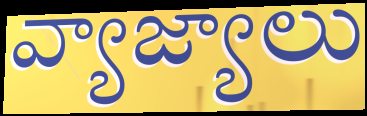
వ్యాజ్యాలు